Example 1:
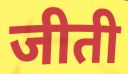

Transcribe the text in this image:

जीती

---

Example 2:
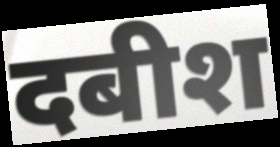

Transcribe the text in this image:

दबीश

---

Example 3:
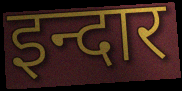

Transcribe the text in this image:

इन्दार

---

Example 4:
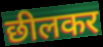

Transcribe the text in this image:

छीलकर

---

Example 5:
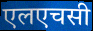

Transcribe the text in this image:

एलएचसी